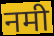
नमी